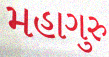
મહાગુરુ